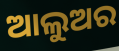
ଆଲୁଅର